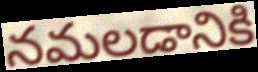
నమలడానికి